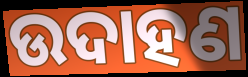
ଉଦାହଣ